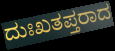
ದುಃಖತಪ್ತರಾದ